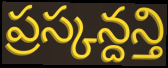
ప్రస్కన్దన్తి